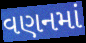
વણનમાં